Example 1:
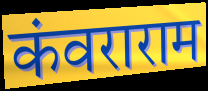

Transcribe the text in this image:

कंवराराम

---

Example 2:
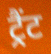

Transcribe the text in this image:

ट्रैंट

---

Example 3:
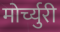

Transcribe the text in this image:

मोर्च्युरी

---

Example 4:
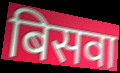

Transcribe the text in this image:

बिसवा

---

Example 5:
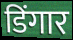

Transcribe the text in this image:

डिंगार